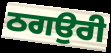
ਠਗਉਰੀ